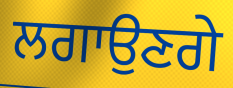
ਲਗਾਉਣਗੇ